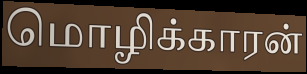
மொழிக்காரன்